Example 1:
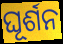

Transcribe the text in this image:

ଘୂର୍ଶନ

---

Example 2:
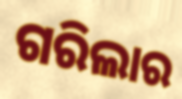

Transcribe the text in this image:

ଗରିଲାର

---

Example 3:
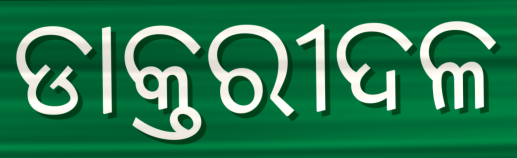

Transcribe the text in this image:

ଡାକ୍ତରୀଦଳ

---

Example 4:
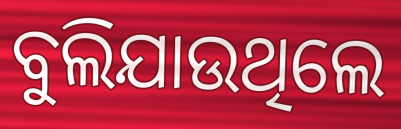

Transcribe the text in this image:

ବୁଲିଯାଉଥିଲେ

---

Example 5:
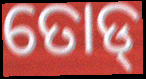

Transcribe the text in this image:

ତୋଡ୍